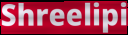
Shreelipi